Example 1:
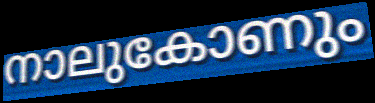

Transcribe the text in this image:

നാലുകോണും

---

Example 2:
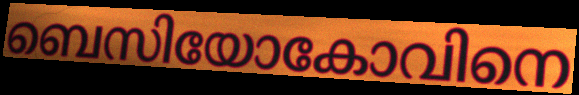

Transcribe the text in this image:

ബെസിയോകോവിനെ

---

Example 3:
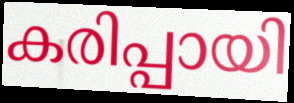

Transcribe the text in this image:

കരിപ്പായി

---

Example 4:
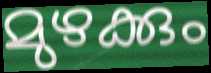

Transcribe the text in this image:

മുഴക്കും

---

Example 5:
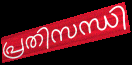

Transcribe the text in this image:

പ്രതിസന്ധി